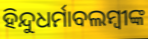
ହିନ୍ଦୁଧର୍ମାବଲମ୍ବୀଙ୍କ